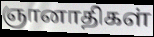
ஞானாதிகள்